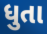
ધુતા